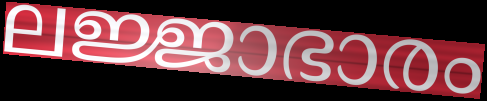
ലജ്ജാഭാരം